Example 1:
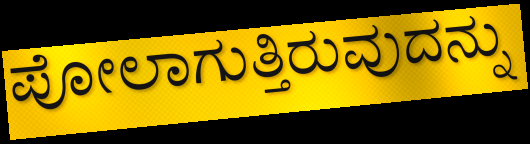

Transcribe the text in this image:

ಪೋಲಾಗುತ್ತಿರುವುದನ್ನು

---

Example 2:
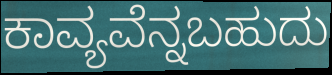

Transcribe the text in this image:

ಕಾವ್ಯವೆನ್ನಬಹುದು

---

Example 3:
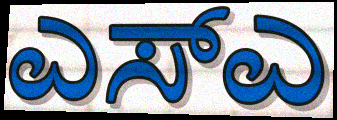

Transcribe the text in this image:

ಎಸ್ಎ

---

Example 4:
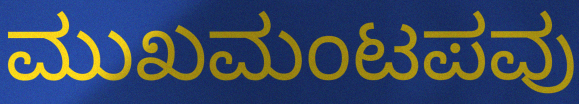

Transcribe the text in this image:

ಮುಖಮಂಟಪವು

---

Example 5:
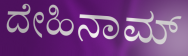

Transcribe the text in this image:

ದೇಹಿನಾಮ್